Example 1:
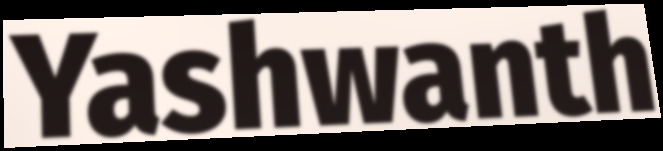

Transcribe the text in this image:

Yashwanth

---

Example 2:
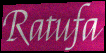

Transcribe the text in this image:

Ratufa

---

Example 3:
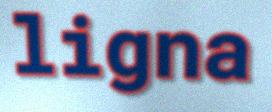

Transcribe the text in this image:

ligna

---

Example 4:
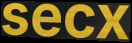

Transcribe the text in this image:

secx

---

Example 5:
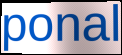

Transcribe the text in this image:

ponal